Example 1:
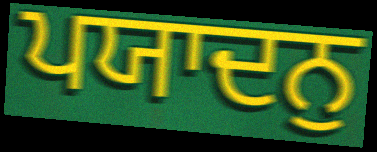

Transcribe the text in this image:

ਪਯਾਦਨੁ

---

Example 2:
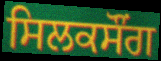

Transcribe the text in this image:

ਸਿਲਕਸੌਂਗ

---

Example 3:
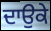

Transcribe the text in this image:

ਦਾਉਕੇ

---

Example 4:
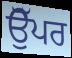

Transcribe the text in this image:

ਉੋੱਪਰ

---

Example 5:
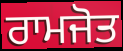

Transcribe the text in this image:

ਰਾਮਜੋਤ